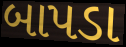
બાપડા